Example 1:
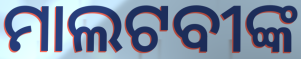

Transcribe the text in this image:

ମାଲଟବୀଙ୍କ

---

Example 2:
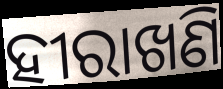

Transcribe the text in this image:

ହୀରାଖଣି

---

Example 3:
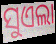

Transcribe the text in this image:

ସୁଏଲା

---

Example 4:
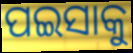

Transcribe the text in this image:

ପଇସାକୁ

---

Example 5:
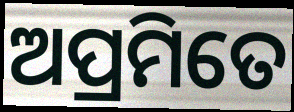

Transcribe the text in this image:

ଅପ୍ରମିତେ